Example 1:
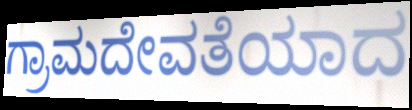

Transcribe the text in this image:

ಗ್ರಾಮದೇವತೆಯಾದ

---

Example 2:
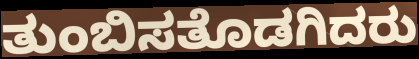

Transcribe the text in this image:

ತುಂಬಿಸತೊಡಗಿದರು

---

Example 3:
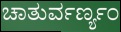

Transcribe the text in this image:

ಚಾತುರ್ವರ್ಣ್ಯಂ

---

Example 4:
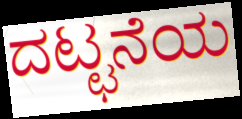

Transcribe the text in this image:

ದಟ್ಟನೆಯ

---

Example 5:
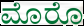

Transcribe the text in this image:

ಮೊರೊ